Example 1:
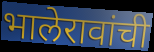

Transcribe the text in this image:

भालेरावांची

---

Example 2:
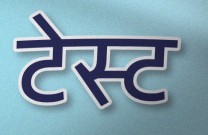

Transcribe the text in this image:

टेस्ट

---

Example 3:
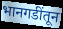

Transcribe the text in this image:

भानगडींतून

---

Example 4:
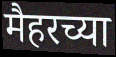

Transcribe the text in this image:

मैहरच्या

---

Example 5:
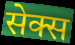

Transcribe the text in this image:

सेक्स